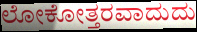
ಲೋಕೋತ್ತರವಾದುದು